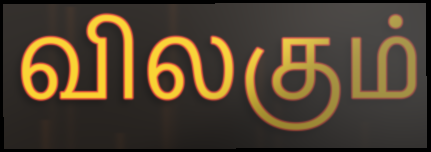
விலகும்